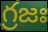
గ్రజః